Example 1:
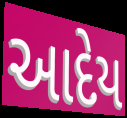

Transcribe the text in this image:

આદેય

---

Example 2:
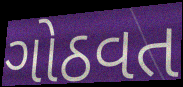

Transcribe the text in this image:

ગોઠવત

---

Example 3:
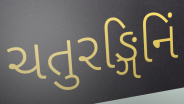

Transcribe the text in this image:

ચતુરઙ્ગિનિં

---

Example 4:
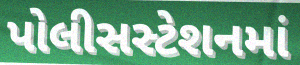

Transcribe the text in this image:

પોલીસસ્ટેશનમાં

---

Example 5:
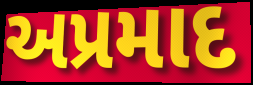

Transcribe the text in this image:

અપ્રમાદ